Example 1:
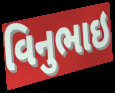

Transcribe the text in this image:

વિનુભાઇ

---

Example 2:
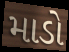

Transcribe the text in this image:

માડો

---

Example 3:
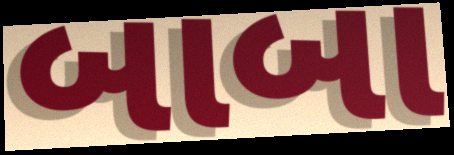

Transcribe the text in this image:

બાબા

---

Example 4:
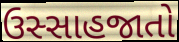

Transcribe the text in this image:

ઉસ્સાહજાતો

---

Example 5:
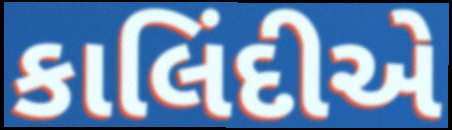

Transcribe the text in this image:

કાલિંદીએ